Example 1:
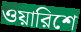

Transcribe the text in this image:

ওয়ারিশে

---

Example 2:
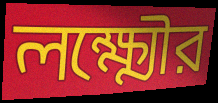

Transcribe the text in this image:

লক্ষ্মৌর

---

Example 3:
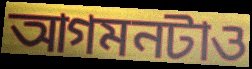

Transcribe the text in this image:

আগমনটাও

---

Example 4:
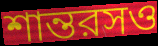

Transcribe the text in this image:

শান্তরসও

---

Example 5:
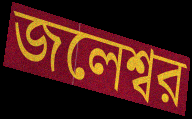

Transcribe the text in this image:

জলেশ্বর